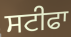
ਸਟੀਫਾ